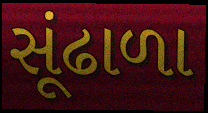
સૂંઢાળા